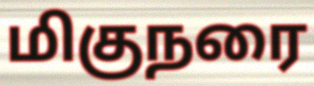
மிகுநரை